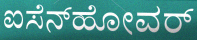
ಐಸೆನ್‍ಹೋವರ್